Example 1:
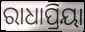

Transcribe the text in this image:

ରାଧାପ୍ରିୟା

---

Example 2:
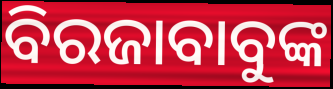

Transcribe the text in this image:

ବିରଜାବାବୁଙ୍କ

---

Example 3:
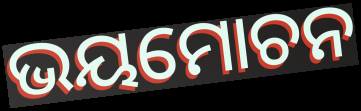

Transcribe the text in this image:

ଭୟମୋଚନ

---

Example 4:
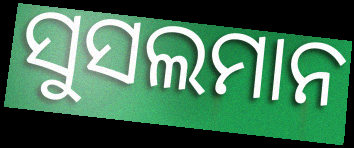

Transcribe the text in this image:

ସୁସଲମାନ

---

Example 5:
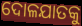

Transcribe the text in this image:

ଦୋଳଯାତକୁ